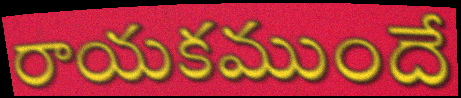
రాయకముందే